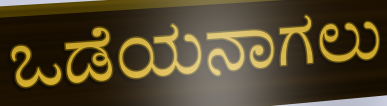
ಒಡೆಯನಾಗಲು